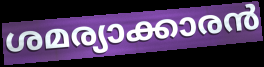
ശമര്യാക്കാരൻ